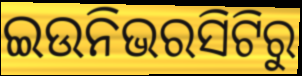
ଇଉନିଭରସିଟିରୁ